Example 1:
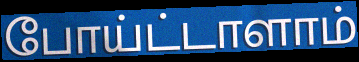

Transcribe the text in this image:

போய்ட்டாளாம்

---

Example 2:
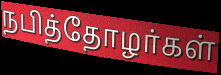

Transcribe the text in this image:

நபித்தோழர்கள்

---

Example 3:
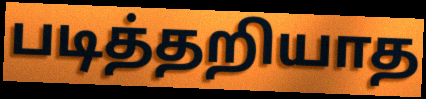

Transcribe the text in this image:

படித்தறியாத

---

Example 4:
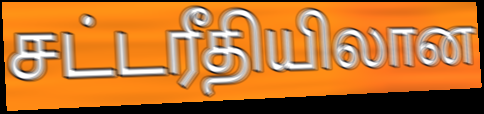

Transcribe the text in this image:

சட்டரீதியிலான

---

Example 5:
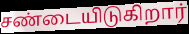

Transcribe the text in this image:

சண்டையிடுகிறார்